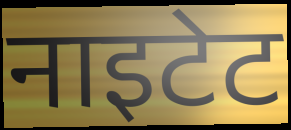
नाइटेट